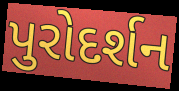
પુરોદર્શન